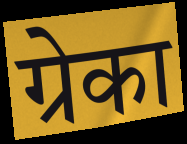
ग्रेका